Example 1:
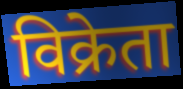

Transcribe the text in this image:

विक्रेता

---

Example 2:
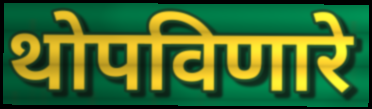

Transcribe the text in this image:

थोपविणारे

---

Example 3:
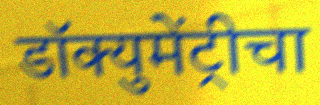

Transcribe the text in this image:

डॉक्युमेंट्रीचा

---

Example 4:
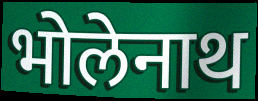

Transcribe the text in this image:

भोलेनाथ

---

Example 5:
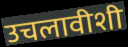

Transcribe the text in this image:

उचलावीशी